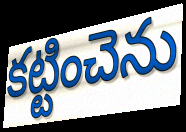
కట్టించెను